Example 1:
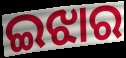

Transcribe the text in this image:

ଇଝାର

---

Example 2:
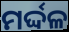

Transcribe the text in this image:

ମର୍ଦ୍ଦଳ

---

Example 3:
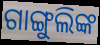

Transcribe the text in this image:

ଗାଙ୍ଗୁଲିଙ୍କ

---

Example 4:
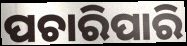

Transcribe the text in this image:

ପଚାରିପାରି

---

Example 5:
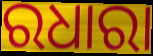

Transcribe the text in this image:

ରଧାରା